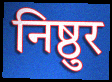
निष्ठुर